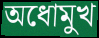
অধোমুখ